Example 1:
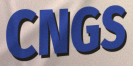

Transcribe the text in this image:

CNGS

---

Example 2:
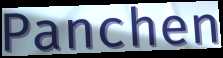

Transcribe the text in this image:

Panchen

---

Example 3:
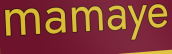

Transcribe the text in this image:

mamaye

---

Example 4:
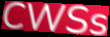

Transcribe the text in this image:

CWSs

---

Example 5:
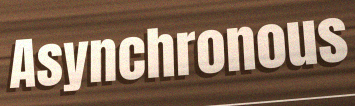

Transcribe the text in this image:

Asynchronous